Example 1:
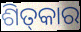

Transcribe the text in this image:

ଶିତ୍‍କାର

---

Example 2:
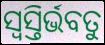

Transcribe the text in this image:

ସ୍ୱସ୍ତିର୍ଭବତୁ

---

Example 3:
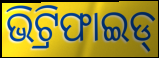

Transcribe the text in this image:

ଭିଟ୍ରିଫାଇଡ୍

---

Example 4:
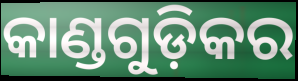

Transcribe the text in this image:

କାଣ୍ଡଗୁଡ଼ିକର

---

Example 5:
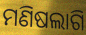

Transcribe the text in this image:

ମଣିଷଲାଗି